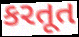
કરતૂત